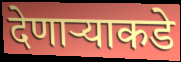
देणाऱ्याकडे